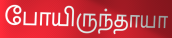
போயிருந்தாயா